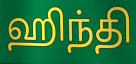
ஹிந்தி